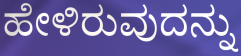
ಹೇಳಿರುವುದನ್ನು